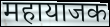
महायाजक